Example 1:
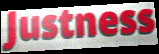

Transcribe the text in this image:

Justness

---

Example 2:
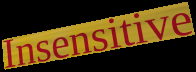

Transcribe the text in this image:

Insensitive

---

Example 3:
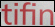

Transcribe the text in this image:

tifin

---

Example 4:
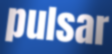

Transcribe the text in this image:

pulsar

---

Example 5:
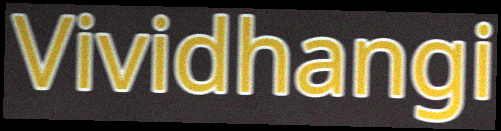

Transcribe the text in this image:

Vividhangi